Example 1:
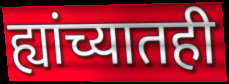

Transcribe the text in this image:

ह्यांच्यातही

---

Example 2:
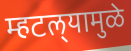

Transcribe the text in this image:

म्हटल्यामुळे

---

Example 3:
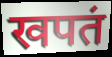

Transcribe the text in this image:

खपतं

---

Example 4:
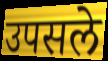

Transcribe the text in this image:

उपसले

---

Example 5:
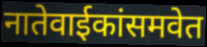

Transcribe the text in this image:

नातेवाईकांसमवेत